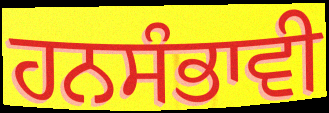
ਹਨਸੰਭਾਵੀ